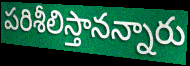
పరిశీలిస్తానన్నారు